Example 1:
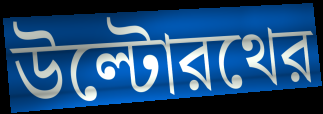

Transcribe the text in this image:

উল্টোরথের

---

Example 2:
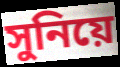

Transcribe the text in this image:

সুনিয়ে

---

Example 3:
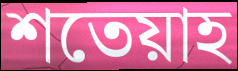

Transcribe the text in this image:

শতেয়াহ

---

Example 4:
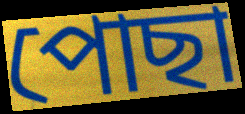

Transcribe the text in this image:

পোছা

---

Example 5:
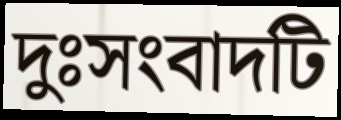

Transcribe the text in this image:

দুঃসংবাদটি